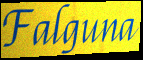
Falguna